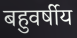
बहुवर्षीय